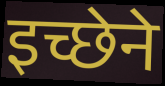
इच्छेने